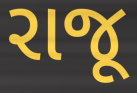
રાજૂ